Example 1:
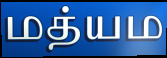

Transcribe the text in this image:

மத்யம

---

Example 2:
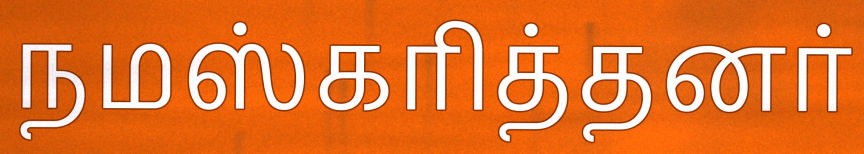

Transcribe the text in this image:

நமஸ்கரித்தனர்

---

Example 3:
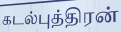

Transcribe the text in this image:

கடல்புத்திரன்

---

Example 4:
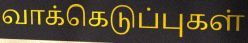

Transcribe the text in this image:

வாக்கெடுப்புகள்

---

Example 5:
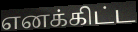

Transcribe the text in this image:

எனக்கிட்ட